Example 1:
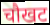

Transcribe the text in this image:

चौखट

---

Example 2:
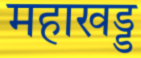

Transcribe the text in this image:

महाखड्ड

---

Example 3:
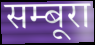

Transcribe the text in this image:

सम्बूरा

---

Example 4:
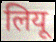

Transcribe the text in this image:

लियू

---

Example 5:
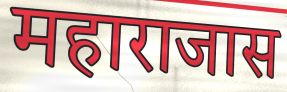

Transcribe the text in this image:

महाराजास